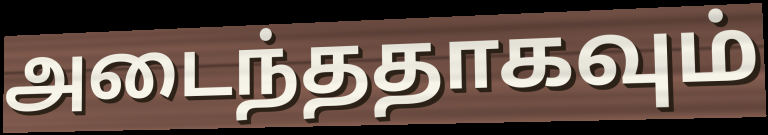
அடைந்ததாகவும்